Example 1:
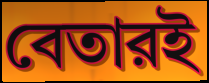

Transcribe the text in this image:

বেতারই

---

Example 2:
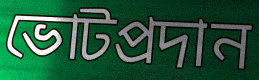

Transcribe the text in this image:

ভোটপ্রদান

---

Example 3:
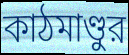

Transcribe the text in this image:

কাঠমাণ্ডুর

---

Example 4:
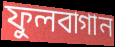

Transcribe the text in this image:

ফুলবাগান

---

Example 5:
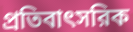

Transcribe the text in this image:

প্রতিবাৎসরিক